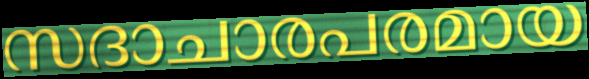
സദാചാരപരമായ